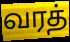
வரத்